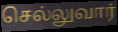
செல்லுவார்